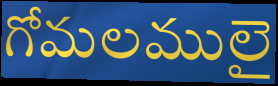
గోమలములై